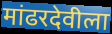
मांढरदेवीला